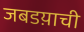
जबडय़ाची